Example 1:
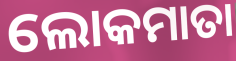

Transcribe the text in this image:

ଲୋକମାତା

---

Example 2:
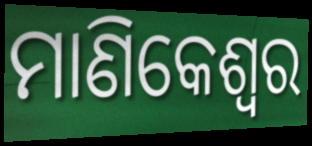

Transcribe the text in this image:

ମାଣିକେଶ୍ଵର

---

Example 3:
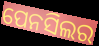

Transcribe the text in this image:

ପେନସିଲର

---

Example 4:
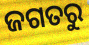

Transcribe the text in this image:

ଜଗତରୁ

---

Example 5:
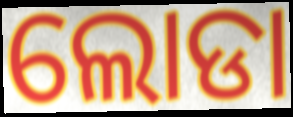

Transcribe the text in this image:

ଲୋଡା